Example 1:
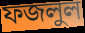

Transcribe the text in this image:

ফজলুল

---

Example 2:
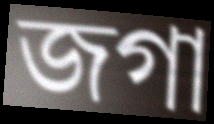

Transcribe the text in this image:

জগা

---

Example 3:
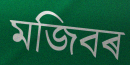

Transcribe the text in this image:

মজিবৰ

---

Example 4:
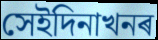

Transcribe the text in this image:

সেইদিনাখনৰ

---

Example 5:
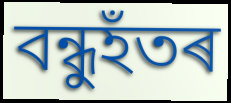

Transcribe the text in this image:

বন্ধুহঁতৰ